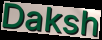
Daksh